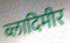
ब्लादिमीर